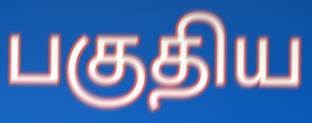
பகுதிய